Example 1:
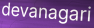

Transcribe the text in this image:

devanagari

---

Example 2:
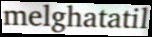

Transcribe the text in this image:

melghatatil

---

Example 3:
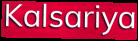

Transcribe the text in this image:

Kalsariya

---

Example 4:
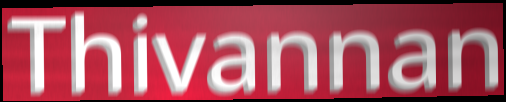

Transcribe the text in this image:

Thivannan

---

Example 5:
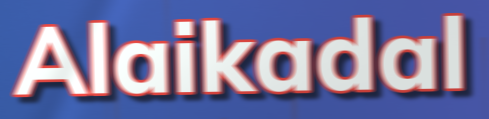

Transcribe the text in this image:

Alaikadal